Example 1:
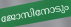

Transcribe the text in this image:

ജോസിനോടും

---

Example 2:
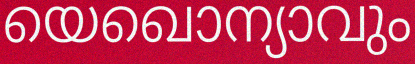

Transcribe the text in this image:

യെഖൊന്യാവും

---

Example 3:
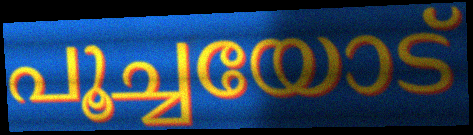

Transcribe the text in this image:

പൂച്ചയോട്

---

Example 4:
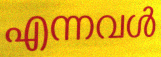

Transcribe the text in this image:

എന്നവൾ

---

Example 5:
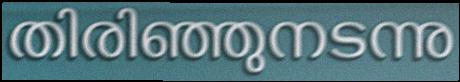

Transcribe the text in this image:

തിരിഞ്ഞുനടന്നു